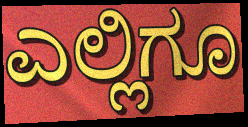
ಎಲ್ಲಿಗೂ